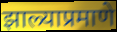
झाल्याप्रमाणे